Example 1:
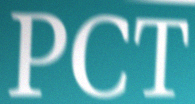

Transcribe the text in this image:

PCT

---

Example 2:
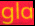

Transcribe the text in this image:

gla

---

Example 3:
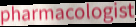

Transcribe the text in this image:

pharmacologist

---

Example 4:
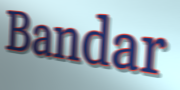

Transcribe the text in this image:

Bandar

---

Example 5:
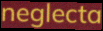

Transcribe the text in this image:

neglecta